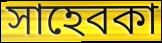
সাহেবকা